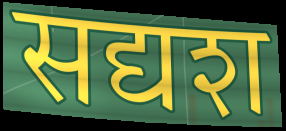
सद्यश